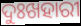
ଦୁଃଖହାରୀ